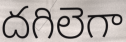
దగిలెగా